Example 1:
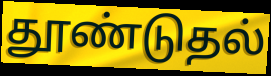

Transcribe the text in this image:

தூண்டுதல்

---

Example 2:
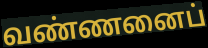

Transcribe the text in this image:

வண்ணனைப்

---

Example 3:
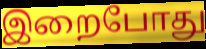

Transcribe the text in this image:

இறைபோது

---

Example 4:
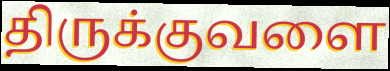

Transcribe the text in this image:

திருக்குவளை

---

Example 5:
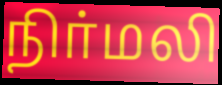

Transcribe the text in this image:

நிர்மலி